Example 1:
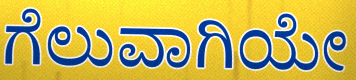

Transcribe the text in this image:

ಗೆಲುವಾಗಿಯೇ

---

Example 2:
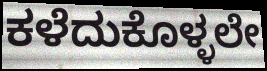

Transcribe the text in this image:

ಕಳೆದುಕೊಳ್ಳಲೇ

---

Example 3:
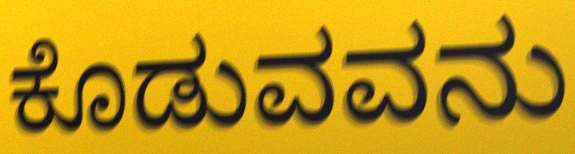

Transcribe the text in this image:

ಕೊಡುವವನು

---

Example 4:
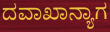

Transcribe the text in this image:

ದವಾಖಾನ್ಯಾಗ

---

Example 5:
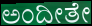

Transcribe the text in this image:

ಅಂದೀತೇ